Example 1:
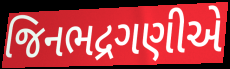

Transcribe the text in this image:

જિનભદ્રગણીએ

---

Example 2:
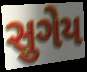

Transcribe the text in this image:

સુગેય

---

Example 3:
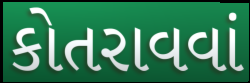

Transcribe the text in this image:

કોતરાવવાં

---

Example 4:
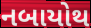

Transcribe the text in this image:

નબાયોથ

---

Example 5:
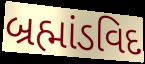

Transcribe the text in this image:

બ્રહ્માંડવિદ